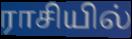
ராசியில்